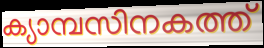
ക്യാമ്പസിനകത്ത്